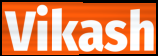
Vikash